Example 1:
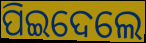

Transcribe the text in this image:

ପିଇଦେଲେ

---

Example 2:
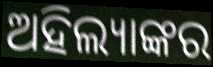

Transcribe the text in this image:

ଅହିଲ୍ୟାଙ୍କର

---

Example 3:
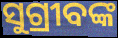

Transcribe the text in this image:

ସୁଗ୍ରୀବଙ୍କ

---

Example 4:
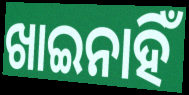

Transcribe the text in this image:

ଖାଇନାହିଁ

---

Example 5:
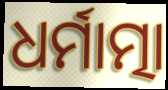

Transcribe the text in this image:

ଧର୍ମାତ୍ମା